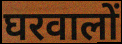
घरवालों